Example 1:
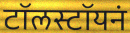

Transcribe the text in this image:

टॉलस्टॉयनं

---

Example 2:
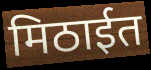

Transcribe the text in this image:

मिठाईत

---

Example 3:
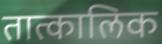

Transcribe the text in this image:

तात्कालिक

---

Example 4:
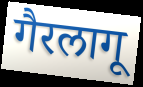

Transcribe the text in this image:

गैरलागू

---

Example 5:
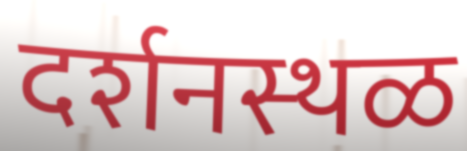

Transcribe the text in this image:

दर्शनस्थळ